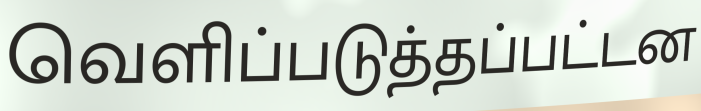
வெளிப்படுத்தப்பட்டன